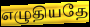
எழுதியதே